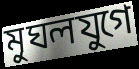
মুঘলযুগে